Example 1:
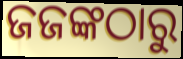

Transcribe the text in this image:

ଜଜଙ୍କଠାରୁ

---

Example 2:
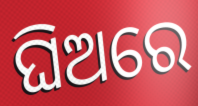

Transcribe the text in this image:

ଘିଅରେ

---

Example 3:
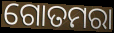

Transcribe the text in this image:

ଗୋତମରା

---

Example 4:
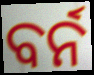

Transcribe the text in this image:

ବର୍ନ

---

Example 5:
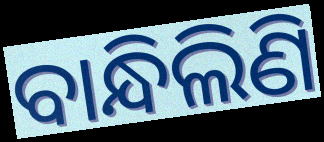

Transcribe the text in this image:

ବାନ୍ଧିଲିଣି